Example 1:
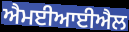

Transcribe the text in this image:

ਐਮਈਆਈਐਲ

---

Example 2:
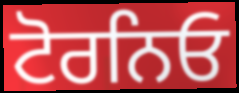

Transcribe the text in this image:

ਟੋਰਨਿਓ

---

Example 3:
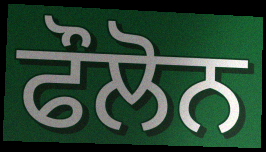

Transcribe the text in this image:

ਫੌਲੋਨ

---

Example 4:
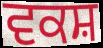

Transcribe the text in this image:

ਵਕਸ਼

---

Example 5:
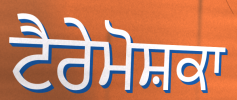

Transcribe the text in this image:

ਟੈਰੇਮੋਸ਼ਕਾ